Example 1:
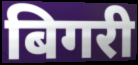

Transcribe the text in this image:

बिगरी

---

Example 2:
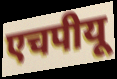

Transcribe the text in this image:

एचपीयू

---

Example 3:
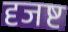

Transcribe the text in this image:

दृजष्ट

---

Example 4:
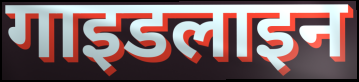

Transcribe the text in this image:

गाइडलाइन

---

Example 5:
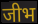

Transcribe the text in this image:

जीभ